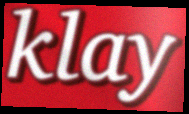
klay